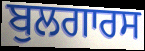
ਬੁਲਗਾਰਸ